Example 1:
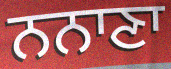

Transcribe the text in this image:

ਨਨਾਣਾ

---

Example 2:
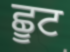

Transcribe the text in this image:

ਛੂਟ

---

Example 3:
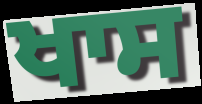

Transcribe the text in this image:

ਖਾਸ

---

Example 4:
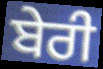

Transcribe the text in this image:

ਬੇਰੀ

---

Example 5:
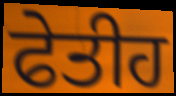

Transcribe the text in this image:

ਫੇਤੀਹ